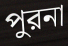
পুরনা